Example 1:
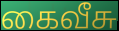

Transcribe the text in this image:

கைவீசு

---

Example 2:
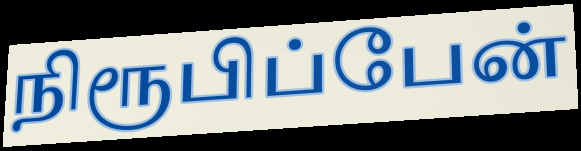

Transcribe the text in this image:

நிரூபிப்பேன்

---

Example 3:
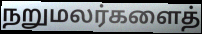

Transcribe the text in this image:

நறுமலர்களைத்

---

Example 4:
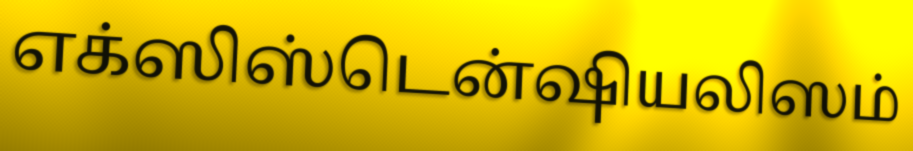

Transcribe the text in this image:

எக்ஸிஸ்டென்ஷியலிஸம்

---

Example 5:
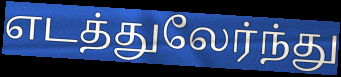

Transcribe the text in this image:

எடத்துலேர்ந்து